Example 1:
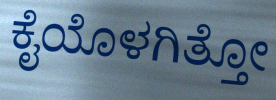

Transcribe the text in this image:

ಕೈಯೊಳಗಿತ್ತೋ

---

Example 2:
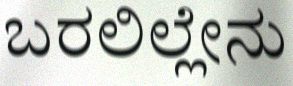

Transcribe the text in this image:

ಬರಲಿಲ್ಲೇನು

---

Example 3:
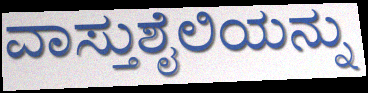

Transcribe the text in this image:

ವಾಸ್ತುಶೈಲಿಯನ್ನು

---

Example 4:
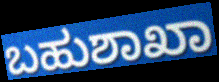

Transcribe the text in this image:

ಬಹುಶಾಖಾ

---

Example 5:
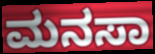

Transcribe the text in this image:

ಮನಸಾ